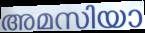
അമസിയാ